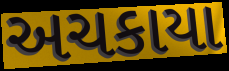
અચકાયા